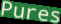
Pures